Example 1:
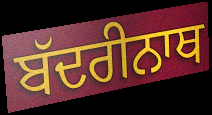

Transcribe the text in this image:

ਬੱਦਰੀਨਾਥ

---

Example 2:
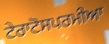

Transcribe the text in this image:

ਟੇਰਾਟੋਸਪਰਮੀਆ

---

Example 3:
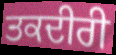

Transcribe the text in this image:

ਤਕਦੀਰੀ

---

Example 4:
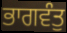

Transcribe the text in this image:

ਭਾਗਵੰਤੁ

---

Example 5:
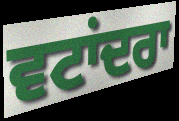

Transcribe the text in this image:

ਵਟਾਂਦਰਾ